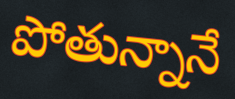
పోతున్నానే